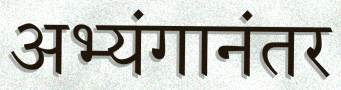
अभ्यंगानंतर